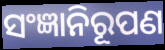
ସଂଜ୍ଞାନିରୂପଣ